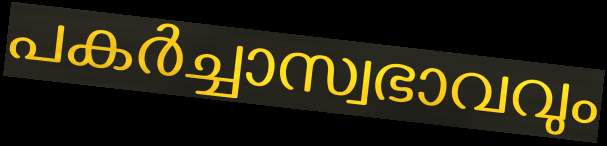
പകർച്ചാസ്വഭാവവും